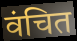
वंचित